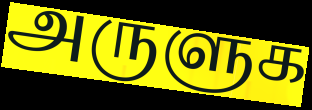
அருளுக